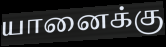
யானைக்கு